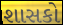
શાસકો